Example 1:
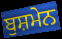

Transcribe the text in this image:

ਬੁਸ਼ਮੇਨ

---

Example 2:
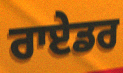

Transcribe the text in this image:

ਰਾਏਡਰ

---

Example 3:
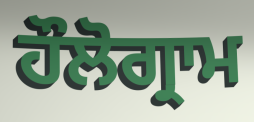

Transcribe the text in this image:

ਹੌਲੋਗ੍ਰਾਮ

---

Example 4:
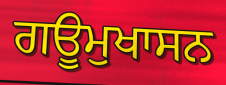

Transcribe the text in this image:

ਗਊਮੁਖਾਸਨ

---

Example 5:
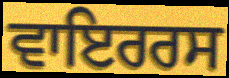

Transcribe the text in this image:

ਵਾਇਰਰਸ